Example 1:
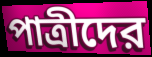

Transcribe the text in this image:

পাত্রীদের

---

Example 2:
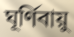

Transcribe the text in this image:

ঘূর্ণিবায়ু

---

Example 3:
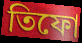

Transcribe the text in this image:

তিফো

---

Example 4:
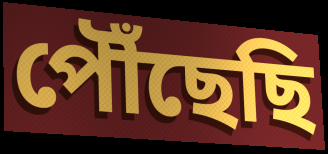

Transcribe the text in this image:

পৌঁছেছি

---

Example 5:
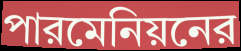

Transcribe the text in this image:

পারমেনিয়নের